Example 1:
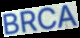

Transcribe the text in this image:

BRCA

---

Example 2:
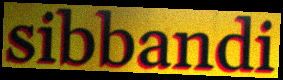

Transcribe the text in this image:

sibbandi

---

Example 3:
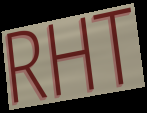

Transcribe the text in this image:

RHT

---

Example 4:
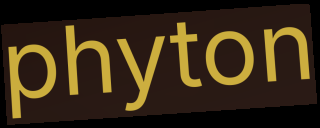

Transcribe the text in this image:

phyton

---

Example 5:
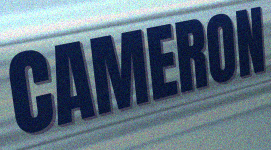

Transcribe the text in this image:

CAMERON